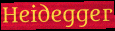
Heidegger